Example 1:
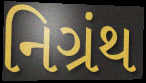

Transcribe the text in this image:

નિગ્રંથ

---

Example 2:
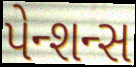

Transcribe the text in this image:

પેન્શન્સ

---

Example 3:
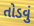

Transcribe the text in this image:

તોડવું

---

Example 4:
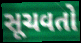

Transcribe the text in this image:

સૂચવતો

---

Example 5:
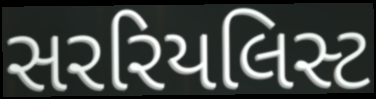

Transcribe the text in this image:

સરરિયલિસ્ટ